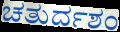
ಚತುರ್ದಶಂ